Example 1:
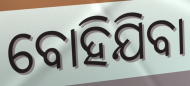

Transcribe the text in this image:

ବୋହିଯିବା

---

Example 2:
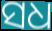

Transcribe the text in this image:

ସଧ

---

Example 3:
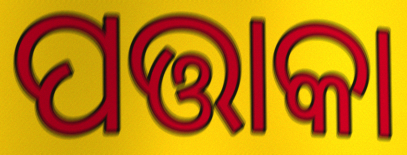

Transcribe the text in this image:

ପତ୍ତାକା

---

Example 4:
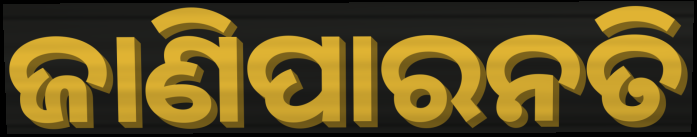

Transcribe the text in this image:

ଜାଣିପାରନତି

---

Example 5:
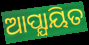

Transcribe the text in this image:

ଆପ୍ଯାୟିତ